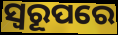
ସ୍ଵରୂପରେ